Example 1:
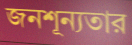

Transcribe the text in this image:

জনশূন্যতার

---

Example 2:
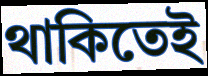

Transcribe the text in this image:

থাকিতেই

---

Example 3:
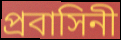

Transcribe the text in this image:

প্রবাসিনী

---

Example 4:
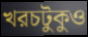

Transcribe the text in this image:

খরচটুকুও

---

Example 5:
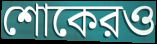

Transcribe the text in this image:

শোকেরও